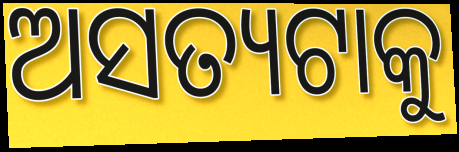
ଅସତ୍ୟଟାକୁ